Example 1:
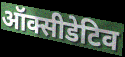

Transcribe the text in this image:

ऑक्सीडेटिव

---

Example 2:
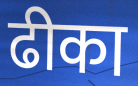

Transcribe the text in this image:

ढीका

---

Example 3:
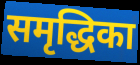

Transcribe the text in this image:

समृद्धिका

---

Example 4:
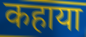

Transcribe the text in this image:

कहाया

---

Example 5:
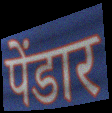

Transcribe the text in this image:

पेंडार